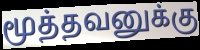
மூத்தவனுக்கு